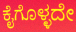
ಕೈಗೊಳ್ಳದೇ